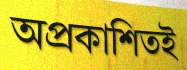
অপ্রকাশিতই